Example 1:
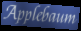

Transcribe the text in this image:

Applebaum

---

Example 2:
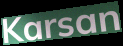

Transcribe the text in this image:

Karsan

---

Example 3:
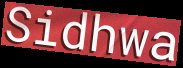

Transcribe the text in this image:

Sidhwa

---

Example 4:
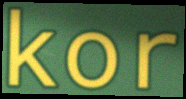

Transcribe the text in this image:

kor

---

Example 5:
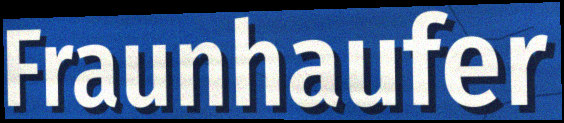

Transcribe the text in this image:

Fraunhaufer